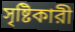
সৃষ্টিকারী